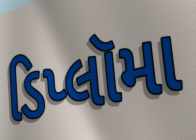
ડિપ્લૉમા